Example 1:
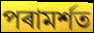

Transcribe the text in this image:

পৰামৰ্শত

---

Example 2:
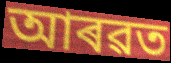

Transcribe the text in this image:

আৰৱত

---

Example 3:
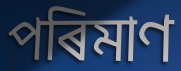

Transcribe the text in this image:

পৰিমাণ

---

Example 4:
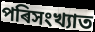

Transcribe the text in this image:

পৰিসংখ্যাত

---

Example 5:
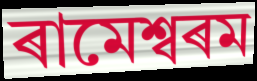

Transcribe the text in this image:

ৰামেশ্বৰম